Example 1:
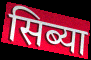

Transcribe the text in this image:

सिब्या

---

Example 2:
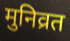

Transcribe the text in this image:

मुनिव्रत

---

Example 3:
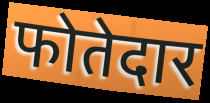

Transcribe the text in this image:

फोतेदार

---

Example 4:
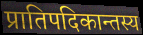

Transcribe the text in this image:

प्रातिपदिकान्तस्य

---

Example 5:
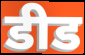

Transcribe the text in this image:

डीड